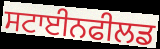
ਸਟਾਈਨਫੀਲਡ